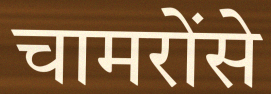
चामरोंसे